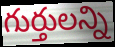
గుర్తులన్ని